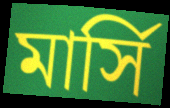
মার্সি